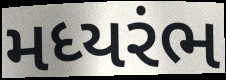
મધ્યરંભ